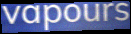
vapours